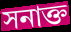
সনাক্ত